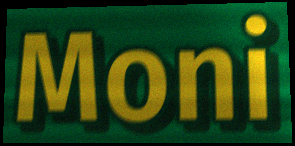
Moni